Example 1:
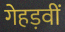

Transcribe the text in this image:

गेहड़वीं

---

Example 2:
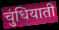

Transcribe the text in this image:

चुंधियाती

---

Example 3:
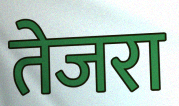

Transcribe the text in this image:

तेजरा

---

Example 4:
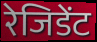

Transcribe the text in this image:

रेजिडेंट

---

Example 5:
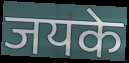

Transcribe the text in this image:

जयके